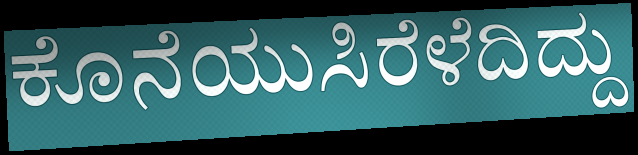
ಕೊನೆಯುಸಿರೆಳೆದಿದ್ದು